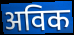
अविक